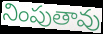
నింపుతావు